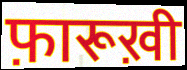
फ़ारूख़ी